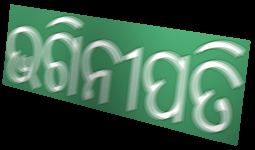
ଭଗିନୀପତି